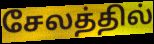
சேலத்தில்